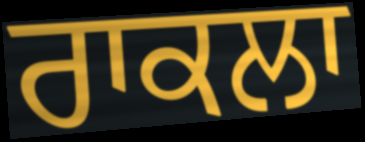
ਰਾਕਲਾ